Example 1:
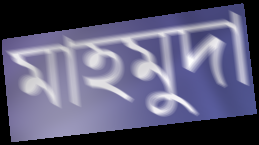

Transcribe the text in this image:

মাহমুদা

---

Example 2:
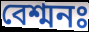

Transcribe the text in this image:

বেশ্মনঃ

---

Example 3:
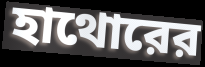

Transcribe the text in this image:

হাথোরের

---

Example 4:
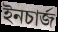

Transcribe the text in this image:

ইনচার্জ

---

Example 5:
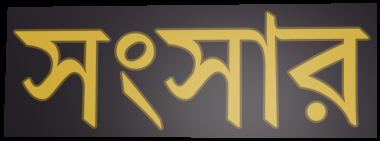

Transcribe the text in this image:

সংসার